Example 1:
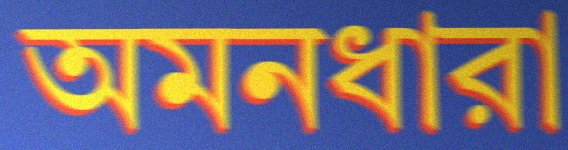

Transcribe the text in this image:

অমনধারা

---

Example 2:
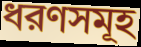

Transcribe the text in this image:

ধরণসমূহ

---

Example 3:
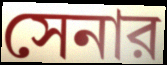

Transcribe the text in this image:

সেনার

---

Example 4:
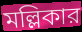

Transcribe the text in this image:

মল্লিকার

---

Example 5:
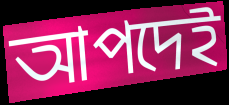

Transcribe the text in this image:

আপদেই